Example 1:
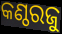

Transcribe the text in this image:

କଣ୍ଠରଜୁ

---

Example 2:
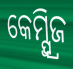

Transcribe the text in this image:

କେମ୍ପ୍ୱ୍ରିଜ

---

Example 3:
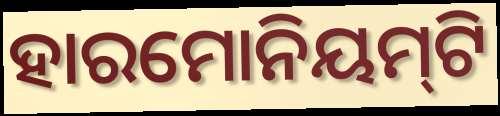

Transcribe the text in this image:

ହାରମୋନିୟମ୍‍ଟି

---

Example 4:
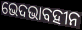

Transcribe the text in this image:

ଭେଦଭାବହୀନ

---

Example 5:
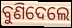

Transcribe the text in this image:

ବୁଣିଦେଲେ